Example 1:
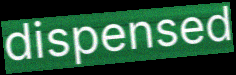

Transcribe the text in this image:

dispensed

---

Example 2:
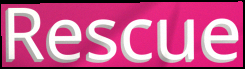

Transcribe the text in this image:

Rescue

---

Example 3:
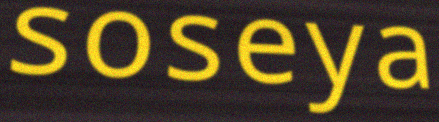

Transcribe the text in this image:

soseya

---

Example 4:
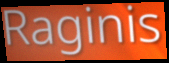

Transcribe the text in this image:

Raginis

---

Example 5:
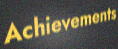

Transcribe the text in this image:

Achievements